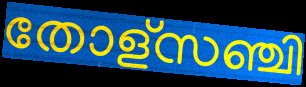
തോള്സഞ്ചി